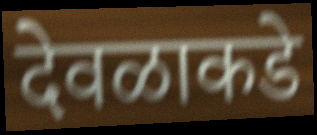
देवळाकडे